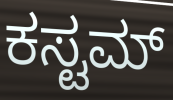
ಕಸ್ಟಮ್